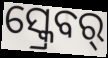
ସ୍କ୍ରେବର୍